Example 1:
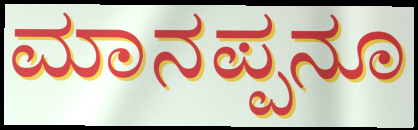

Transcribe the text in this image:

ಮಾನಪ್ಪನೂ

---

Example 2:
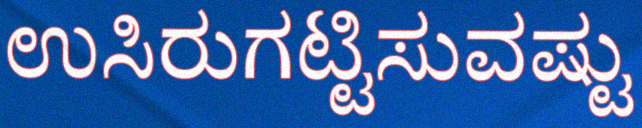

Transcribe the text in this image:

ಉಸಿರುಗಟ್ಟಿಸುವಷ್ಟು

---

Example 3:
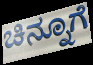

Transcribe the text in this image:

ಚಿನ್ನೂಗೆ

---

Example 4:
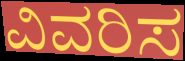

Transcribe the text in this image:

ವಿವರಿಸ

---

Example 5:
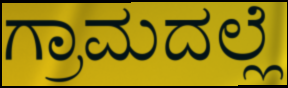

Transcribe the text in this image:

ಗ್ರಾಮದಲ್ಲೆ